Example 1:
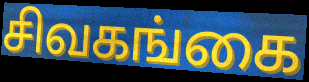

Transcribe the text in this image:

சிவகங்கை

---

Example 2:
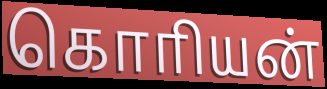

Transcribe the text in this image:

கொரியன்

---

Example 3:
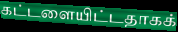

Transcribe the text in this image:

கட்டளையிட்டதாகக்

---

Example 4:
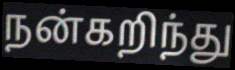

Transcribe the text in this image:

நன்கறிந்து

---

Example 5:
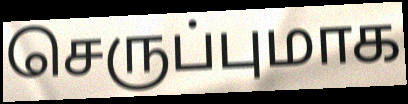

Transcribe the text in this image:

செருப்புமாக